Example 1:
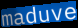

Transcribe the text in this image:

maduve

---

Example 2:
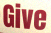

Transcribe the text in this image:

Give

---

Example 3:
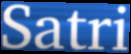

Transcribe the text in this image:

Satri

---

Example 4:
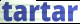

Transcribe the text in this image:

tartar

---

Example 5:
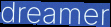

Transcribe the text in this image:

dreamer